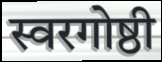
स्वरगोष्ठी